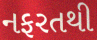
નફરતથી